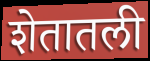
शेतातली